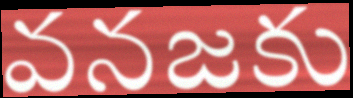
వనజకు